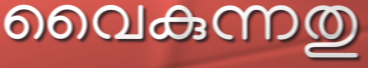
വൈകുന്നതു